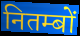
नितम्बों